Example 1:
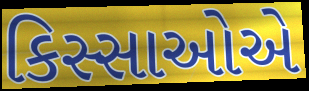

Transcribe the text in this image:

કિસ્સાઓએ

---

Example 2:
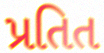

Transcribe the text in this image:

પ્રતિત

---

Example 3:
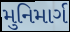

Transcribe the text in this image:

મુનિમાર્ગ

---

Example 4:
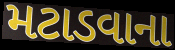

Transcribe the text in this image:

મટાડવાના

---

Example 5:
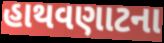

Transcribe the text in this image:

હાથવણાટના